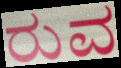
ರುವ